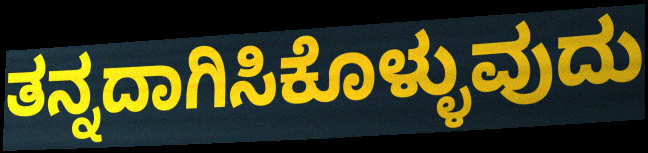
ತನ್ನದಾಗಿಸಿಕೊಳ್ಳುವುದು